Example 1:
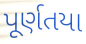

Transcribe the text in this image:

પૂર્ણતયા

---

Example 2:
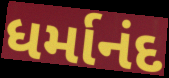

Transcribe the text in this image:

ધર્માનંદ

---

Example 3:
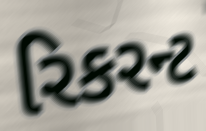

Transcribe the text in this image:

રિકરન્ટ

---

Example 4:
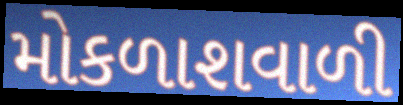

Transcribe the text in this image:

મોકળાશવાળી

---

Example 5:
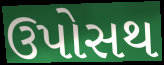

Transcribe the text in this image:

ઉપોસથ